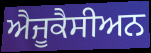
ਐਜੂਕੈਸੀਅਨ